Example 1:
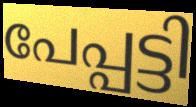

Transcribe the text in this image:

പേപ്പട്ടി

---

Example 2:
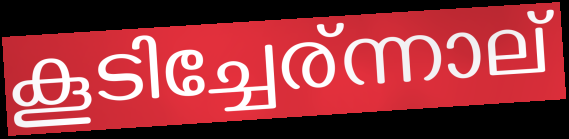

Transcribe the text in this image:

കൂടിച്ചേര്ന്നാല്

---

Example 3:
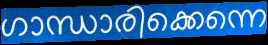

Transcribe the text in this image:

ഗാന്ധാരിക്കെന്നെ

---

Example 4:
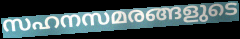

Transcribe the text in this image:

സഹനസമരങ്ങളുടെ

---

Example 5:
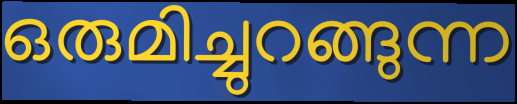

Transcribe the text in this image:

ഒരുമിച്ചുറങ്ങുന്ന